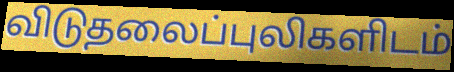
விடுதலைப்புலிகளிடம்